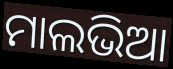
ମାଲଭିଆ